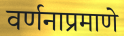
वर्णनाप्रमाणे